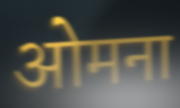
ओमना